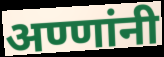
अण्णांनी